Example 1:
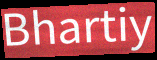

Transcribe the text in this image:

Bhartiy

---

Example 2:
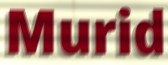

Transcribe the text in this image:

Murid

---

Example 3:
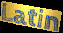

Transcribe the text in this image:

Latin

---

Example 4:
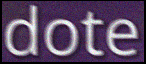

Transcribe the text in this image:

dote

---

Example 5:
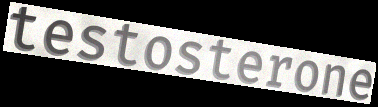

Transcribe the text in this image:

testosterone